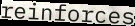
reinforces